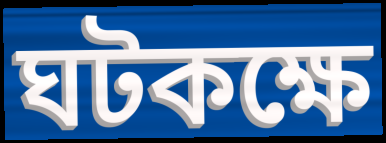
ঘটকক্ষে